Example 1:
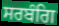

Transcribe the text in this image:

ਸਰਬੰਗਿ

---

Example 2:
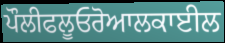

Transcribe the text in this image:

ਪੌਲੀਫਲੂਓਰੋਆਲਕਾਈਲ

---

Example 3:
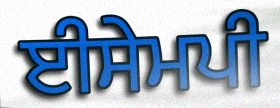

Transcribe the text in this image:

ਈਸੇਮਪੀ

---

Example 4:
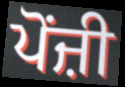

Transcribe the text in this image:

ਪੋਂਜ਼ੀ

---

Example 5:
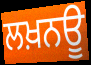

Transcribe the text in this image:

ਲਖ਼ਨਊ